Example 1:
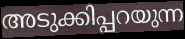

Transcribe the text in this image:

അടുക്കിപ്പറയുന്ന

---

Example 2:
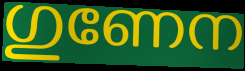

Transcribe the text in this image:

ഗുണേന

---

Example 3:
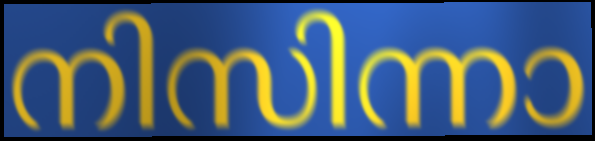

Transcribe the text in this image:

നിസിന്നാ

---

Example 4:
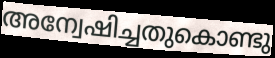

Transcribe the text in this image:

അന്വേഷിച്ചതുകൊണ്ടു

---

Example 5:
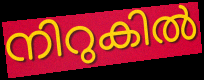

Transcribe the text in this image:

നിറുകിൽ